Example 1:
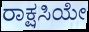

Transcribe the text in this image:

ರಾಕ್ಷಸಿಯೇ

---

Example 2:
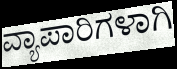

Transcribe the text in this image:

ವ್ಯಾಪಾರಿಗಳಾಗಿ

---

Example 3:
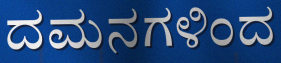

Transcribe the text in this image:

ದಮನಗಳಿಂದ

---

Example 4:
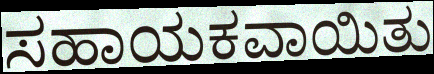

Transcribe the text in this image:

ಸಹಾಯಕವಾಯಿತು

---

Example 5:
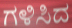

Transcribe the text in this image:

ಗಳಿಸಿದ